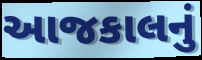
આજકાલનું